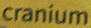
cranium